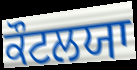
ਕੌਟਲਯਾ